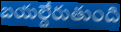
బయల్దేరుతుంది